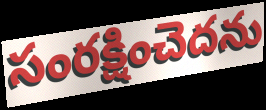
సంరక్షించెదను